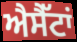
ਐਸੈੱਟਾਂ